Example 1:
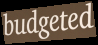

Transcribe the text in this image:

budgeted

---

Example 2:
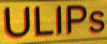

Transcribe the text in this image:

ULIPs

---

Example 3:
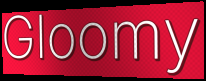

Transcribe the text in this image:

Gloomy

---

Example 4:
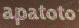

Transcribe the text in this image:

apatoto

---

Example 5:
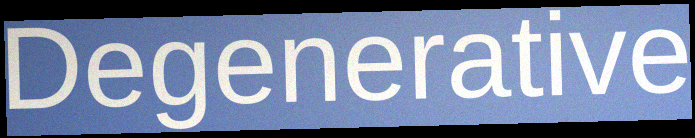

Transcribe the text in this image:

Degenerative